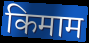
किमाम